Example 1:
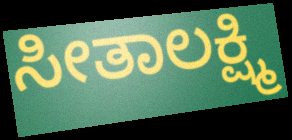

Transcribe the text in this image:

ಸೀತಾಲಕ್ಷ್ಮಿ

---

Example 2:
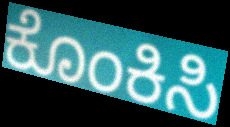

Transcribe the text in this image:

ಕೊಂಕಿಸಿ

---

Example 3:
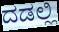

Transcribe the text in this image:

ದಡಲ್ಲಿ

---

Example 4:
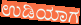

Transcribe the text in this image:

ಉಡಿಯಾಗ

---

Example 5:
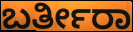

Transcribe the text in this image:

ಬರ್ತೀರಾ